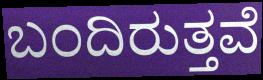
ಬಂದಿರುತ್ತವೆ